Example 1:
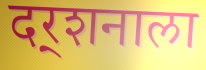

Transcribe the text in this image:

दर्शनाला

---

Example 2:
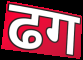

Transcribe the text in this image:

ढग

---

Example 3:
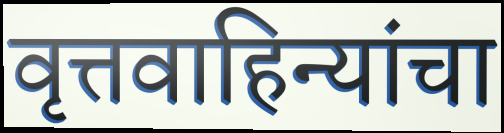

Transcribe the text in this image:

वृत्तवाहिन्यांचा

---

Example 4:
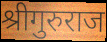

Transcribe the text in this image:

श्रीगुरुराज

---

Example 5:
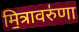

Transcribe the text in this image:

मि॒त्रावरु॑णा